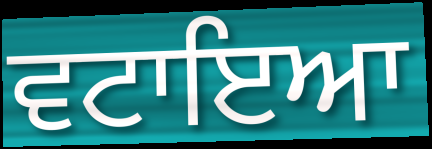
ਵਟਾਇਆ